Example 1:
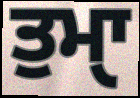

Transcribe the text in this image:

ਤੁਮਾੑ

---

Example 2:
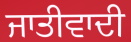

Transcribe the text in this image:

ਜਾਤੀਵਾਦੀ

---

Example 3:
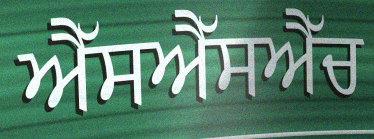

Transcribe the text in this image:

ਐੱਸਐੱਸਐੱਚ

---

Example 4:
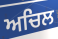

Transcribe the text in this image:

ਅਚਿਲ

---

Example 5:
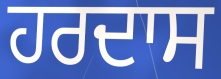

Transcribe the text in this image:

ਹਰਦਾਸ